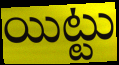
యిట్టు